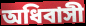
অধিবাসী